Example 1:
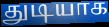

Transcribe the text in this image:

துடியாக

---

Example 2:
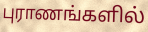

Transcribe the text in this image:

புராணங்களில்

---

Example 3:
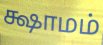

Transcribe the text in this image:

க்ஷாமம்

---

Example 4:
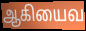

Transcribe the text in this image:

ஆகியைவ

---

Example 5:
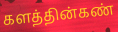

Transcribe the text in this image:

களத்தின்கண்